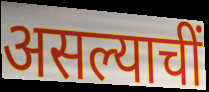
असल्याचीं